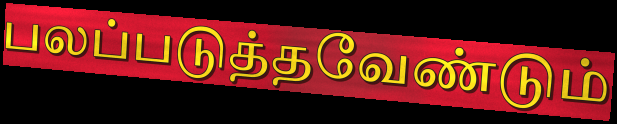
பலப்படுத்தவேண்டும்